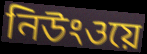
নিউংওয়ে